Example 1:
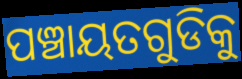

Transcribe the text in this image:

ପଞ୍ଚାୟତଗୁଡିକୁ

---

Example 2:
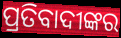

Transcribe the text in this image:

ପ୍ରତିବାଦୀଙ୍କର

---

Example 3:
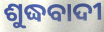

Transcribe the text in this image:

ଶୁଦ୍ଧବାଦୀ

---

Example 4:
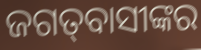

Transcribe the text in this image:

ଜଗତ୍‍ବାସୀଙ୍କର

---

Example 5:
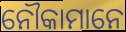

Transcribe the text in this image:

ନୌକାମାନେ